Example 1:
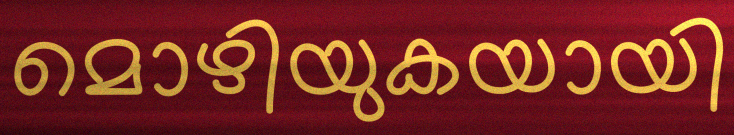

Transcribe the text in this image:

മൊഴിയുകയായി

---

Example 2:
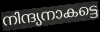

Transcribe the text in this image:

നിന്ദ്യനാകട്ടെ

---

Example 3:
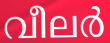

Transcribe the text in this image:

വീലർ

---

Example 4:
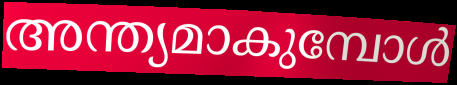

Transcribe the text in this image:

അന്ത്യമാകുമ്പോൾ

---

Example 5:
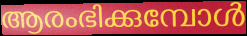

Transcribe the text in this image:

ആരംഭിക്കുമ്പോൾ